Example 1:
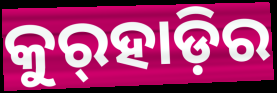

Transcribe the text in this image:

କୁର୍‍ହାଡ଼ିର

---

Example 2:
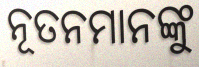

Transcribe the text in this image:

ନୂତନମାନଙ୍କୁ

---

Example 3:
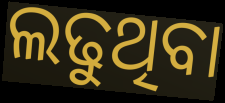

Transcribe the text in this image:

ଲଢୁଥିବା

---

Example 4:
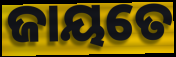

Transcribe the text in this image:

ଜାୟତେ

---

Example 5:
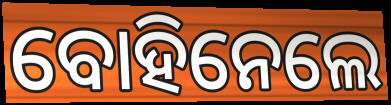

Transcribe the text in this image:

ବୋହିନେଲେ